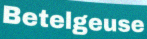
Betelgeuse